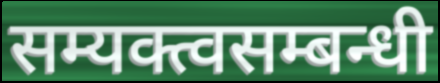
सम्यक्त्वसम्बन्धी